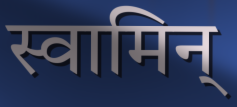
स्वामिन्